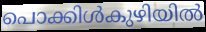
പൊക്കിൾകുഴിയിൽ